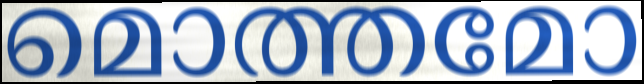
മൊത്തമോ